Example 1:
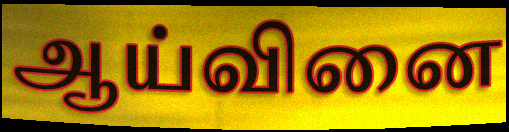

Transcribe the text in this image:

ஆய்வினை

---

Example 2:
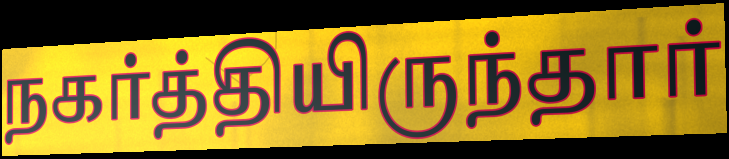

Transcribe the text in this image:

நகர்த்தியிருந்தார்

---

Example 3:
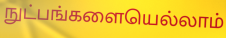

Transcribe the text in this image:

நுட்பங்களையெல்லாம்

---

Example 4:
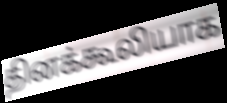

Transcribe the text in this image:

தினக்கூலியாக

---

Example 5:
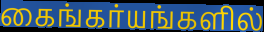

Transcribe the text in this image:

கைங்கர்யங்களில்